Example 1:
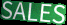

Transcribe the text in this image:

SALES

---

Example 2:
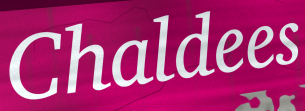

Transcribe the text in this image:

Chaldees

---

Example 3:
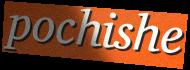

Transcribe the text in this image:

pochishe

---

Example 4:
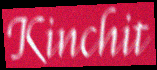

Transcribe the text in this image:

Kinchit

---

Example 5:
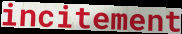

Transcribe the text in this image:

incitement